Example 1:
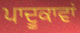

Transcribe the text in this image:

ਪਾਦੂਕਾਵਾਂ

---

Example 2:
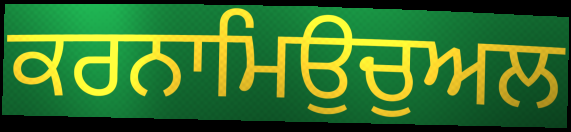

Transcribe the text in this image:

ਕਰਨਾਮਿਉਚੁਅਲ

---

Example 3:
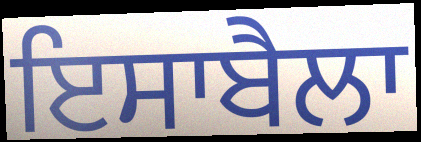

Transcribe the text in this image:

ਇਸਾਬੈਲਾ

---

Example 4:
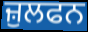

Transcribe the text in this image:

ਜ਼ੁਲਫਨ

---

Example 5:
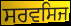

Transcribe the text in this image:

ਸਰਵਸਿਜ